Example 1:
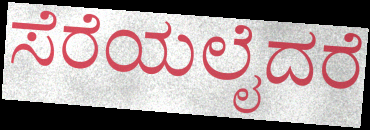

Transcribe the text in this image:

ಸೆರೆಯಲೈದರೆ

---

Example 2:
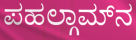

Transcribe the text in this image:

ಪಹಲ್ಗಾಮ್‌ನ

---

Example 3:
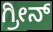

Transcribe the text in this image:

ಗ್ರೀನ್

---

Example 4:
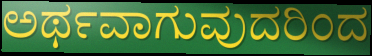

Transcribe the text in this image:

ಅರ್ಥವಾಗುವುದರಿಂದ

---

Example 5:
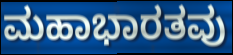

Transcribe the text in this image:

ಮಹಾಭಾರತವು